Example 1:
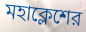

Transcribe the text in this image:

মহাক্লেশের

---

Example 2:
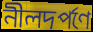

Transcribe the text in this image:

নীলদর্পণে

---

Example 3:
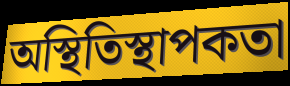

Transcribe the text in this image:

অস্থিতিস্থাপকতা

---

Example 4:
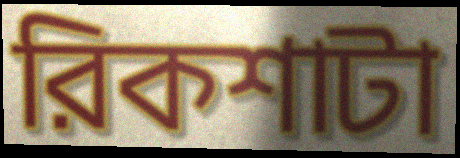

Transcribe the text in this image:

রিকশাটা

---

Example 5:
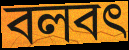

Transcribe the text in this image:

বলবৎ